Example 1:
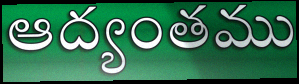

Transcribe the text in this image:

ఆద్యంతము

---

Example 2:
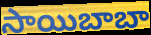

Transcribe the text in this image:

సాయిబాబా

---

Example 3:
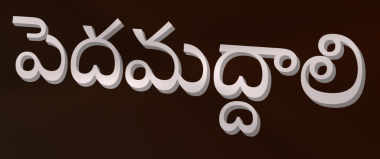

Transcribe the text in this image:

పెదమద్దాలి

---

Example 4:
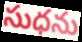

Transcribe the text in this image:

సుధను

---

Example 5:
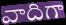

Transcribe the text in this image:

వాదిగా